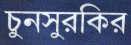
চুনসুরকির